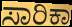
ಸಾರಿಕಾ